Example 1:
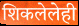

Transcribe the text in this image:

शिकलेलेही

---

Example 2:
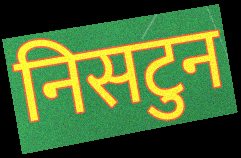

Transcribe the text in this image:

निसटुन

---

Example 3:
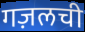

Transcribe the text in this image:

गज़लची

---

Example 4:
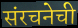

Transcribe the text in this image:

संरचनेची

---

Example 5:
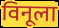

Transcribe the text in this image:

विनूला